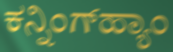
ಕನ್ನಿಂಗ್‌ಹ್ಯಾಂ